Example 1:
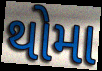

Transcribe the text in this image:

થોમા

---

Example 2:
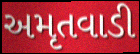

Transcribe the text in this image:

અમૃતવાડી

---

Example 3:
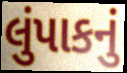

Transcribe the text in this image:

લુંપાકનું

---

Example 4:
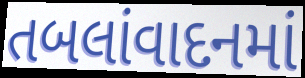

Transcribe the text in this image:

તબલાંવાદનમાં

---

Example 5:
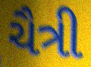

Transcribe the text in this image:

ચૈત્રી